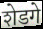
शेडगे